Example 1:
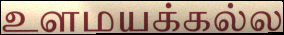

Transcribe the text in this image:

உளமயக்கல்ல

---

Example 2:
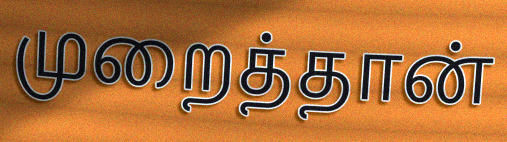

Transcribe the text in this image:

முறைத்தான்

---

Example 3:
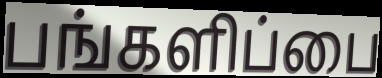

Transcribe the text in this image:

பங்களிப்பை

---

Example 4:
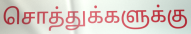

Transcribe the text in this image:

சொத்துக்களுக்கு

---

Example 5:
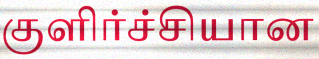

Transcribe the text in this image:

குளிர்ச்சியான